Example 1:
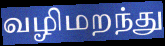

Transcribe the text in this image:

வழிமறந்து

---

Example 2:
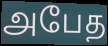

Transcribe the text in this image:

அபேத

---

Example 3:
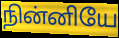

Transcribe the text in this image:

நின்னியே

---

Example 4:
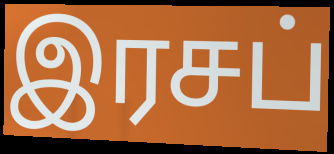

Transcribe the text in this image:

இரசப்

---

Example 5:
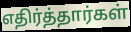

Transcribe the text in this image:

எதிர்த்தார்கள்